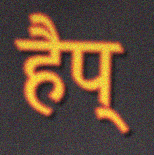
हैप्